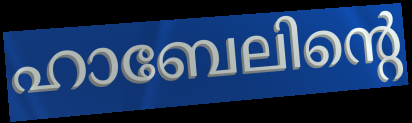
ഹാബേലിന്റെ